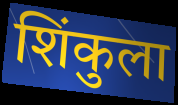
शिंकुला